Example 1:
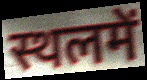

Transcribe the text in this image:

स्थलमें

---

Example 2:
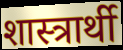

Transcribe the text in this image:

शास्त्रार्थी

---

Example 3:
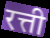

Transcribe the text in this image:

रत्ती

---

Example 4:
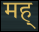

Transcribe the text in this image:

मह्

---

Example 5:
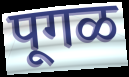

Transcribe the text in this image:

पूगळ